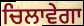
ਚਿਲਾਵੇਗਾ